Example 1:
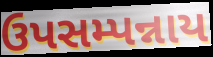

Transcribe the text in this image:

ઉપસમ્પન્નાય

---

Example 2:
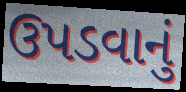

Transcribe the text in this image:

ઉપડવાનું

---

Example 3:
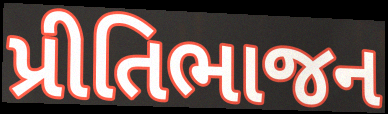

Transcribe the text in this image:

પ્રીતિભાજન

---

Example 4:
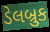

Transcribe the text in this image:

ડેલબ્રુક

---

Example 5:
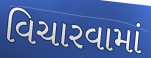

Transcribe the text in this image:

વિચારવામાં